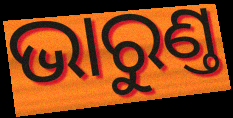
ଭାରୁଣ୍ତ